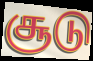
சூடு